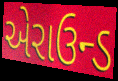
એરાઉન્ડ